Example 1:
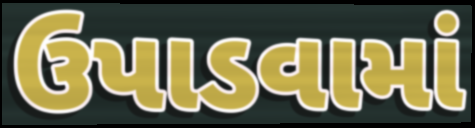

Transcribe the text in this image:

ઉપાડવામાં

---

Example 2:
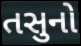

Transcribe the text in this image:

તસુનો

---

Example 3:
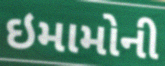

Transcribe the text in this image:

ઇમામોની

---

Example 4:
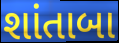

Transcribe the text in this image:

શાંતાબા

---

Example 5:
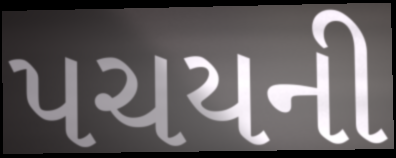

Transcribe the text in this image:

પચયની